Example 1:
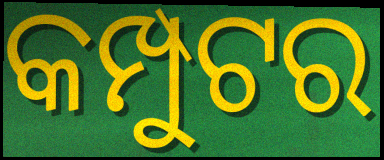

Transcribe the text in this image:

କମ୍ପୁଟର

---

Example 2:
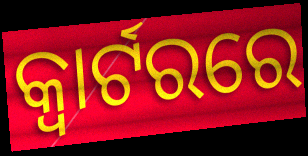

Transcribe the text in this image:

କ୍ଵାର୍ଟରରେ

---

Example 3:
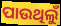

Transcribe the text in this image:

ପାଉଥିଲୁଁ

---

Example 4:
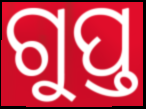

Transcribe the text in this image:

ଗୁପ୍ତ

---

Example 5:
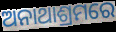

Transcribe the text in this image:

ଅନାଥାଶ୍ରମରେ